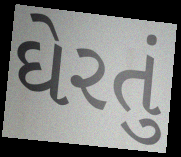
ઘેરતું